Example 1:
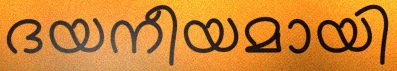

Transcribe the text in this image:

ദയനീയമായി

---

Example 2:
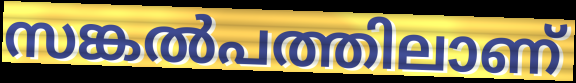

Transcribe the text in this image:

സങ്കൽപത്തിലാണ്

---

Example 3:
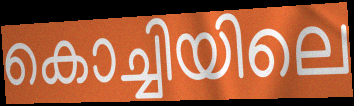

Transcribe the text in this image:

കൊച്ചിയിലെ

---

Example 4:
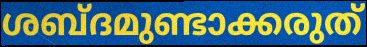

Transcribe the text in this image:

ശബ്ദമുണ്ടാക്കരുത്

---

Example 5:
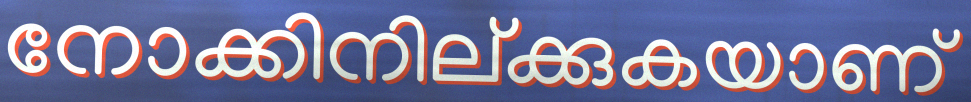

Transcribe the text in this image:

നോക്കിനില്ക്കുകയാണ്